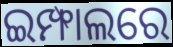
ଇମ୍ଫାଲରେ